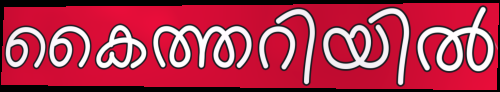
കൈത്തറിയിൽ